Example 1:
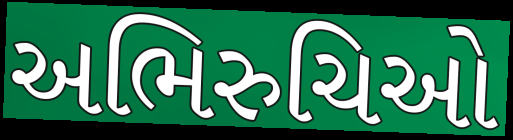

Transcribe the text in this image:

અભિરુચિઓ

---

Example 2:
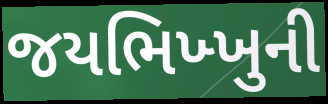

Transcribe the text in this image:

જયભિખ્ખુની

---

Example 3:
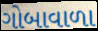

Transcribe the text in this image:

ગોબાવાળા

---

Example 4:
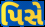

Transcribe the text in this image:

પિસે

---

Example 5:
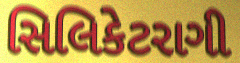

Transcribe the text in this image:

સિલિકેટરાગી